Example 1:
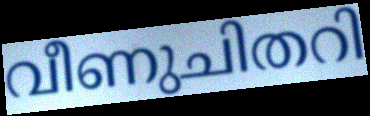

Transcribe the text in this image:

വീണുചിതറി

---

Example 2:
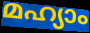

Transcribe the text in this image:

മഹ്യാം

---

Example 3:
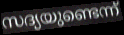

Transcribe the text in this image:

സദ്യയുണ്ടെന്ന്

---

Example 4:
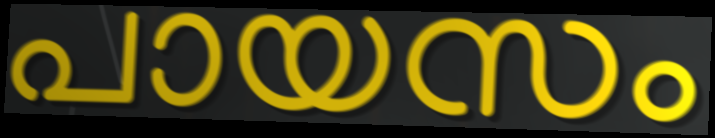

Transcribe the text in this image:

പായസം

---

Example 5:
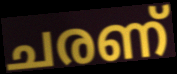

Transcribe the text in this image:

ചരണ്